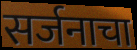
सर्जनाचा